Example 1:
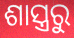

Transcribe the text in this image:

ଶାସ୍ତ୍ରରୁ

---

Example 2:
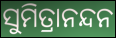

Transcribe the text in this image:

ସୁମିତ୍ରାନନ୍ଦନ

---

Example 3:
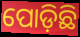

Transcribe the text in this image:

ପୋଡ଼ିଛି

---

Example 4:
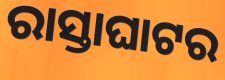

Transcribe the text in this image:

ରାସ୍ତାଘାଟର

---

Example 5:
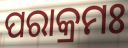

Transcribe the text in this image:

ପରାକ୍ରମଃ